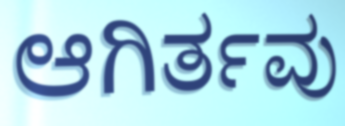
ಆಗಿರ್ತವು